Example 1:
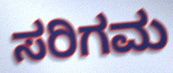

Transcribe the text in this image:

ಸರಿಗಮ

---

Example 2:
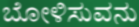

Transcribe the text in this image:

ಬೋಳಿಸುವನು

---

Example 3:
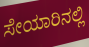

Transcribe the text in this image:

ಸೇಯಾರಿನಲ್ಲಿ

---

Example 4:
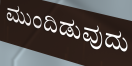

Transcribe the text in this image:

ಮುಂದಿಡುವುದು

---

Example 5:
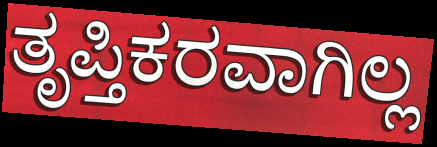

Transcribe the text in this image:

ತೃಪ್ತಿಕರವಾಗಿಲ್ಲ